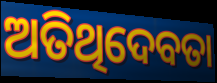
ଅତିଥିଦେବତା